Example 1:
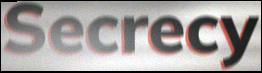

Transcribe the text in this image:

Secrecy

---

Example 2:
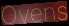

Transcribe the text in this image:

Ovens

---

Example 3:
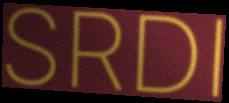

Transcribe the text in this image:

SRDI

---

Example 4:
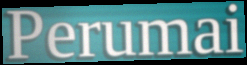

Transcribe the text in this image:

Perumai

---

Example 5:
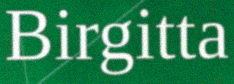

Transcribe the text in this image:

Birgitta